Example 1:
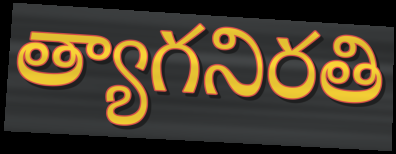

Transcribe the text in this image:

త్యాగనిరతి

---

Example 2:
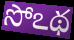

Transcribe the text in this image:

సోఽథ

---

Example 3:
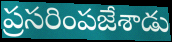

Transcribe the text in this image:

ప్రసరింపజేశాడు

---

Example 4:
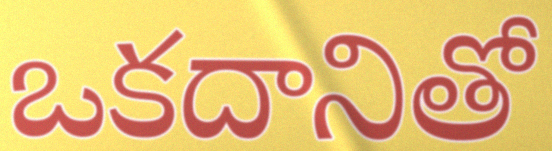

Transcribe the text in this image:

ఒకదానితో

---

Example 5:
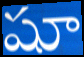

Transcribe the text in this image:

షూ